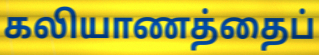
கலியாணத்தைப்